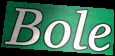
Bole